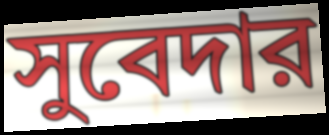
সুবেদার